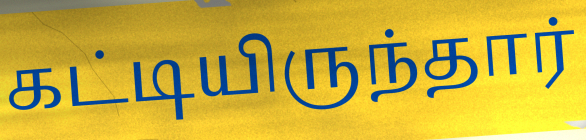
கட்டியிருந்தார்